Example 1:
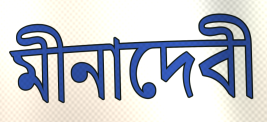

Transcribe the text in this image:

মীনাদেবী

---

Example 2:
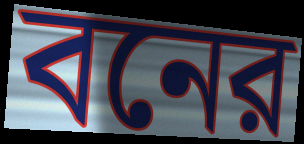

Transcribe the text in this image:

বনের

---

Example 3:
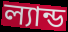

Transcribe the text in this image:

ল্যান্ড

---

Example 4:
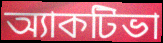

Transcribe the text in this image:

অ্যাকটিভা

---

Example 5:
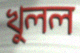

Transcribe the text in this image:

খুলল